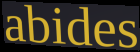
abides